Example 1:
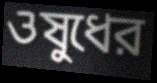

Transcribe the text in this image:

ওষুধের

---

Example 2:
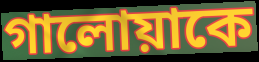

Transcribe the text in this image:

গালোয়াকে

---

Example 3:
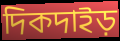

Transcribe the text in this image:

দিকদাইড়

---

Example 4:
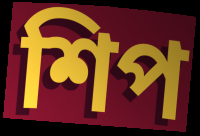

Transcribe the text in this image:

শিপ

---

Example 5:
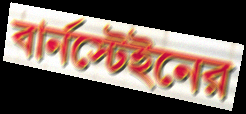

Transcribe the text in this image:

বার্নস্টেইনের